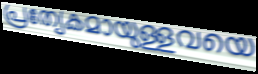
പ്രത്യേകമായുള്ളവയെ